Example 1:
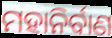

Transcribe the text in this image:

ମହାନିର୍ବାଣ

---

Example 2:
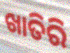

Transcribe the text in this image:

ଖାତିରି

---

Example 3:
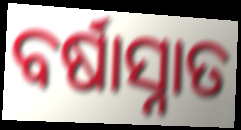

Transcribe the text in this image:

ବର୍ଷାସ୍ନାତ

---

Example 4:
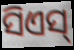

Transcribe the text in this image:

ସିଏସ୍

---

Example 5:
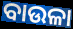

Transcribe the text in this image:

ବାଉଳା